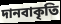
দানবাকৃতি